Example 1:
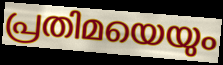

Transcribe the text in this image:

പ്രതിമയെയും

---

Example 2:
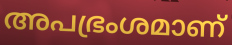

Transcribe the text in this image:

അപഭ്രംശമാണ്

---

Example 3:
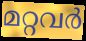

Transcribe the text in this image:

മറ്റവർ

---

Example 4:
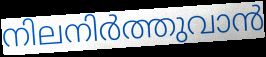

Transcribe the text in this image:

നിലനിർത്തുവാൻ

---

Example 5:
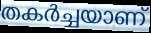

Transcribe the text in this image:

തകർച്ചയാണ്